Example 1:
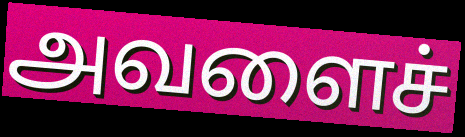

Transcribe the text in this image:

அவளைச்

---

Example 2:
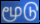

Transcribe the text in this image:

மூடு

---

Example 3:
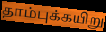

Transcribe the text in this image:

தாம்புக்கயிறு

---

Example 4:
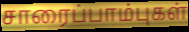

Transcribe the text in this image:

சாரைப்பாம்புகள்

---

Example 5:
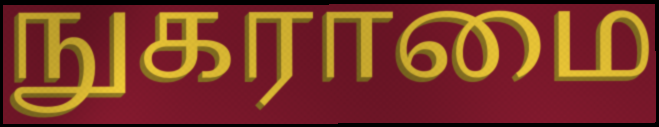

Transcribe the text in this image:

நுகராமை